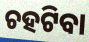
ଚହଟିବା